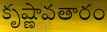
కృష్ణావతారం